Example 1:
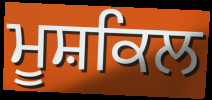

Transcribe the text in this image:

ਮੂਸ਼ਕਿਲ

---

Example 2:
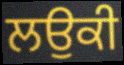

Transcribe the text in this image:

ਲਉਕੀ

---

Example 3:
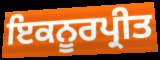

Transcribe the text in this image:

ਇਕਨੂਰਪ੍ਰੀਤ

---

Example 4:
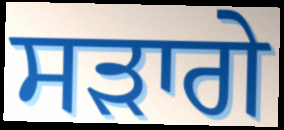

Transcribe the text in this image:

ਸੜਾਗੇ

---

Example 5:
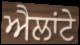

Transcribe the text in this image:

ਐਲਾਂਟੇ